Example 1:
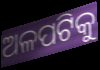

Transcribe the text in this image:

ଅଳପଟିକୁ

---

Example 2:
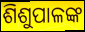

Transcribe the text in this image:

ଶିଶୁପାଳଙ୍କ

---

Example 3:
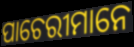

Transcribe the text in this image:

ପାଚେରୀମାନେ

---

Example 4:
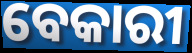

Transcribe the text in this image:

ବେକାରୀ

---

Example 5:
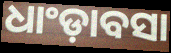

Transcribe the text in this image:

ଧାଂଡ଼ାବସା